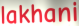
lakhani